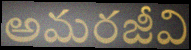
అమరజీవి